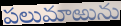
పలుమాఱును